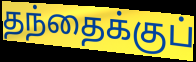
தந்தைக்குப்